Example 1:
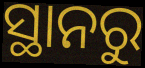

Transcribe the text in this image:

ସ୍ଥାନରୁ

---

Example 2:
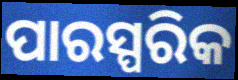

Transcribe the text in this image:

ପାରସ୍ପରିକ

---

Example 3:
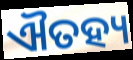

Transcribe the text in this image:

ଐତହ୍ୟ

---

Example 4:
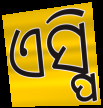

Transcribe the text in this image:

ଏସ୍ପି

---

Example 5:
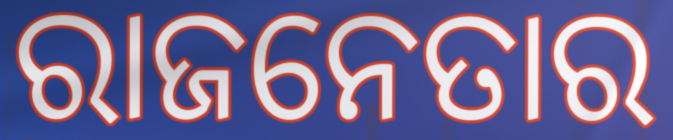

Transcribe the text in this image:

ରାଜନେତାର